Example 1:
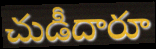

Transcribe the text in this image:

చుడీదారూ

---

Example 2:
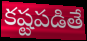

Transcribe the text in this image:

కష్టపడితే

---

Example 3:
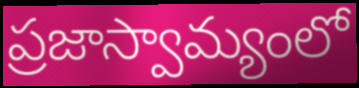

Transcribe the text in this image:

ప్రజాస్వామ్యంలో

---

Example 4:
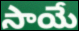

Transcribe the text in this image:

సాయే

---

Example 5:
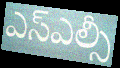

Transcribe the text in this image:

ఎస్ఎల్సీ